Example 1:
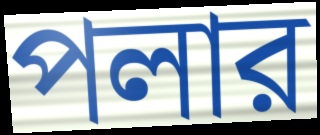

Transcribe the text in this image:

পলার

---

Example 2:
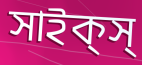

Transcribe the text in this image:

সাইক্‌স্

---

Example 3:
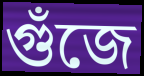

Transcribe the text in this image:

গুঁজে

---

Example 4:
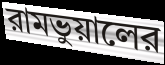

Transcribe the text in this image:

রামভুয়ালের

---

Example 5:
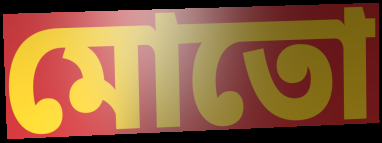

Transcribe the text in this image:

মোতো